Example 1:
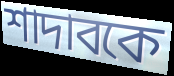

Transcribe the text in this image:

শাদাবকে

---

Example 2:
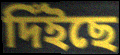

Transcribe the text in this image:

দিঁইছে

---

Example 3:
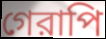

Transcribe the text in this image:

গেরাপি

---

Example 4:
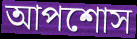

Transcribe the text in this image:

আপশোস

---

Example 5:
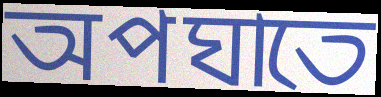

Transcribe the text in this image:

অপঘাতে